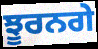
ਝੂਰਨਗੇ